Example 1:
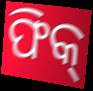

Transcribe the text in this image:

ଫିକ୍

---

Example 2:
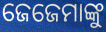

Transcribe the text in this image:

ଜେଜେମାଙ୍କୁ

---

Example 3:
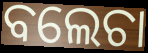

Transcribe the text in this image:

ବଲେଚା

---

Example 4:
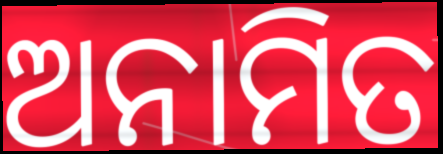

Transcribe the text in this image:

ଅନାମିତ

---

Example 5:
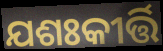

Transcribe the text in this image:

ଯଶଃକୀର୍ତ୍ତି